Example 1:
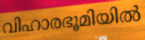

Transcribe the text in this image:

വിഹാരഭൂമിയിൽ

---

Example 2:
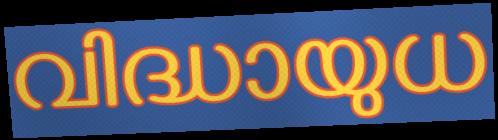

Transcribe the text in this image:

വിദ്ധായുധ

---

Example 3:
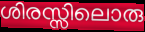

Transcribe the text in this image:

ശിരസ്സിലൊരു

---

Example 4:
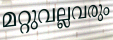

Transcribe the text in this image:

മറ്റുവല്ലവരും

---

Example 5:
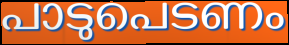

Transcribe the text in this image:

പാടുപെടണം